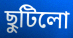
ছুটিলো